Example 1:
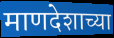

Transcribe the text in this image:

माणदेशाच्या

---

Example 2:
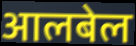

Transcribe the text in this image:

आलबेल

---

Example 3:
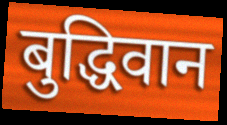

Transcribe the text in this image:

बुद्धिवान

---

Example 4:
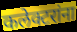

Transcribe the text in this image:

कलेक्टरांना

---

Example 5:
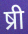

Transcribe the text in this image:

ष्री